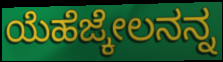
ಯೆಹೆಜ್ಕೇಲನನ್ನ